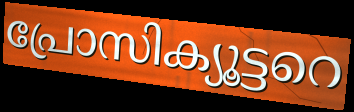
പ്രോസിക്യൂട്ടറെ